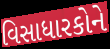
વિસાધારકોને